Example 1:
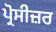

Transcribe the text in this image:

ਪ੍ਰੋਸੀਜ਼ਰ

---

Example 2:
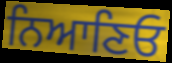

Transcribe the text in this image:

ਨਿਆਣਿਓ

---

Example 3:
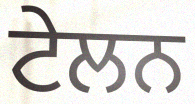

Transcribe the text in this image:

ਟੇਲਨ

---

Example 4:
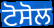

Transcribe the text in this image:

ਟੋਸੋਲ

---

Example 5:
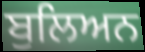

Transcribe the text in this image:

ਬੁਲਿਅਨ